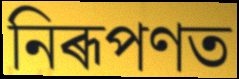
নিৰূপণত